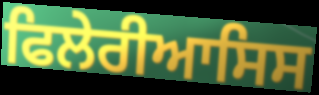
ਫਿਲੇਰੀਆਸਿਸ